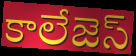
కాలేజెస్